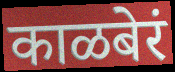
काळबेरं